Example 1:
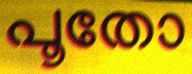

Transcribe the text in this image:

പൂതോ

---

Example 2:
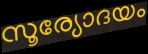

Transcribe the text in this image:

സൂര്യോദയം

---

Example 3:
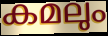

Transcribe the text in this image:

കമലും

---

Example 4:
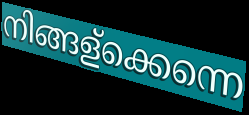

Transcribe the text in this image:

നിങ്ങള്ക്കെന്നെ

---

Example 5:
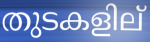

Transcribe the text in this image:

തുടകളില്